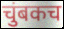
चुंबकच